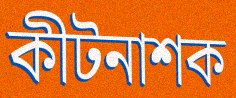
কীটনাশক